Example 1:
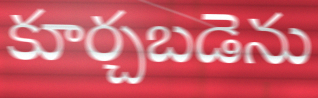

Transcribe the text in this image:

కూర్చబడెను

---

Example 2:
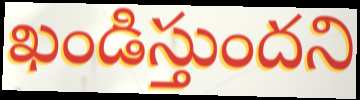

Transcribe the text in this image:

ఖండిస్తుందని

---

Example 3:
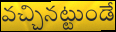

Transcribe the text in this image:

వచ్చినట్టుండే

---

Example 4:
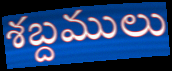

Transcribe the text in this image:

శబ్దములు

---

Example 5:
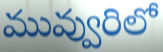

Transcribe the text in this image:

మువ్వురిలో